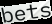
bets